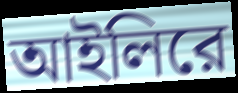
আইলিরে